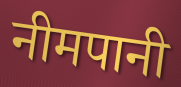
नीमपानी